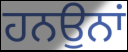
ਹਨਉਨਾਂ